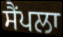
ਸੈਂਪਲਾ